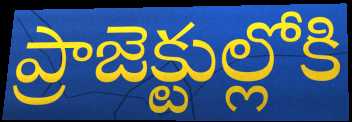
ప్రాజెక్టుల్లోకి